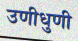
उणीधुणी